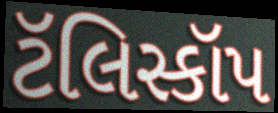
ટૅલિસ્કૉપ